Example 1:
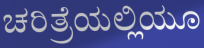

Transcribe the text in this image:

ಚರಿತ್ರೆಯಲ್ಲಿಯೂ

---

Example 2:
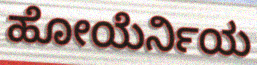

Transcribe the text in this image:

ಹೋಯೆರ್ನಿಯ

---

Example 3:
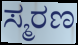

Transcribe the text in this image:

ಸ್ಮರಣ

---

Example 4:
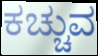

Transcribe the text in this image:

ಕಚ್ಚುವ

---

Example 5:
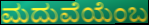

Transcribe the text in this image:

ಮದುವೆಯೆಂಬ